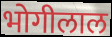
भोगीलाल